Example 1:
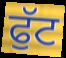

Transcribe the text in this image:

ਫੁੱਟ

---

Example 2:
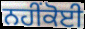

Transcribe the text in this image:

ਨਹੀਂਕੋਈ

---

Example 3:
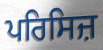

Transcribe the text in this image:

ਪਰਿਸਿਜ਼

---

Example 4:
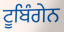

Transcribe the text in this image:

ਟੂਬਿੰਗੇਨ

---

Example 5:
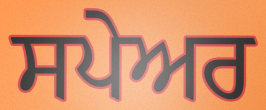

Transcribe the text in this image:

ਸਪੇਅਰ